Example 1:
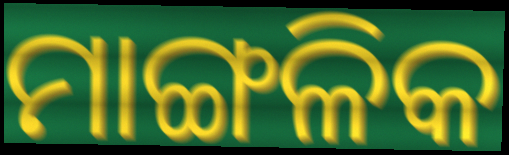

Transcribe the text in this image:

ମାଙ୍ଗଳିକ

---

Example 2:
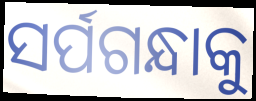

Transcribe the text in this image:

ସର୍ପଗନ୍ଧାକୁ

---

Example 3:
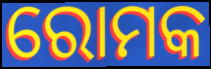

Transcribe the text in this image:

ରୋମକ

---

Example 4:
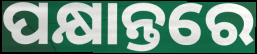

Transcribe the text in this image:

ପକ୍ଷାନ୍ତରେ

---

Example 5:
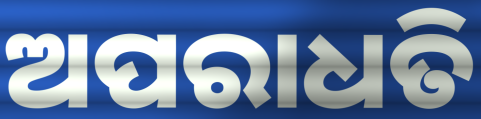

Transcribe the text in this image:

ଅପରାଧତି